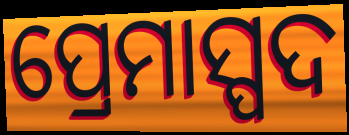
ପ୍ରେମାସ୍ପଦ